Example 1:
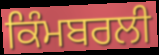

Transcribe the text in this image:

ਕਿੰਮਬਰਲੀ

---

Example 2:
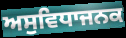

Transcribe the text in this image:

ਅਸੁਵਿਧਾਜਨਕ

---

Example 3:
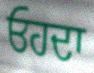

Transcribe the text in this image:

ਓਹਦਾ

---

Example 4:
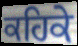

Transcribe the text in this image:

ਕਹਿਕੇ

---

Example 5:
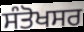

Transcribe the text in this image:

ਸੰਤੋਖਸਰ